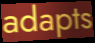
adapts